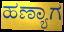
ಹಣ್ಯಾಗ